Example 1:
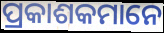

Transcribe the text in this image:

ପ୍ରକାଶକମାନେ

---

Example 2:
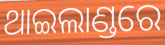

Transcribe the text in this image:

ଥାଇଲାଣ୍ଡରେ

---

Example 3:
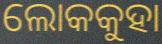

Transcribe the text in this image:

ଲୋକକୁହା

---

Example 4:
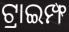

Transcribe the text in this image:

ଟ୍ରାଇମ୍ଫ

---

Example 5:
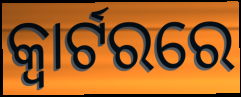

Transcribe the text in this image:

କ୍ୱାର୍ଟରରେ